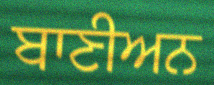
ਬਾਣੀਅਨ